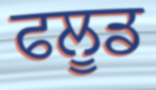
ਫਲੂਡ